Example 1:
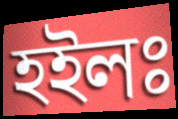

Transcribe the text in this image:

হইলঃ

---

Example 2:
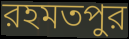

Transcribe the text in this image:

রহমতপুর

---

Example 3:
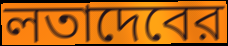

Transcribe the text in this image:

লতাদেবের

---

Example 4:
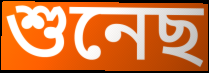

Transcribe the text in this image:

শুনেছ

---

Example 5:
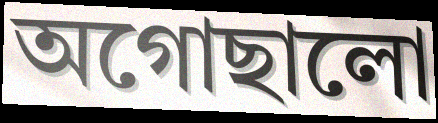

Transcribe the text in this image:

অগোছালো